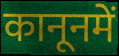
कानूनमें